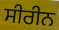
ਸੀਰੀਨ